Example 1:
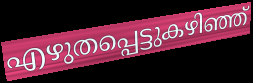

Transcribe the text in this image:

എഴുതപ്പെട്ടുകഴിഞ്ഞ്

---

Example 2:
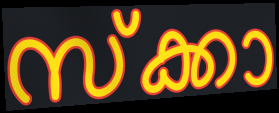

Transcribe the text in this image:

സ്ക്കാ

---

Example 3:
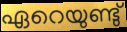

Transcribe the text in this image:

ഏറെയുണ്ടു്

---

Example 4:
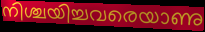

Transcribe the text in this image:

നിശ്ചയിച്ചവരെയാണു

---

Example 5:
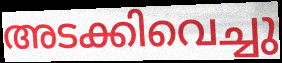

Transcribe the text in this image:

അടക്കിവെച്ചു